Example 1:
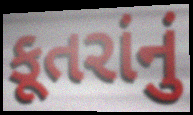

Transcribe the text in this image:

કૂતરાંનું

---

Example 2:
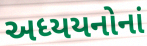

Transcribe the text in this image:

અધ્યયનોનાં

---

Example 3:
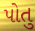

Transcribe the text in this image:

પોતુ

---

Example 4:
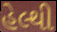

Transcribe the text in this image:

હેલ્થી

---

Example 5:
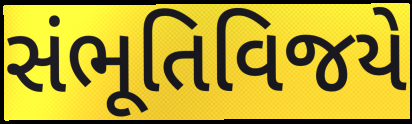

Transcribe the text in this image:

સંભૂતિવિજયે